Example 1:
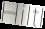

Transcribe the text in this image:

Hiltl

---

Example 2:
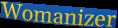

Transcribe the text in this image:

Womanizer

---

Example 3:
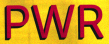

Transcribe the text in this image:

PWR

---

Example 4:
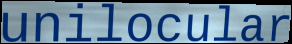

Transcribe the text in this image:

unilocular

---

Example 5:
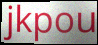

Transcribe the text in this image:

jkpou